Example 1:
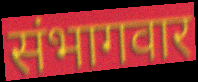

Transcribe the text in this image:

संभागवार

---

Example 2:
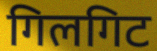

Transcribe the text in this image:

गिलगिट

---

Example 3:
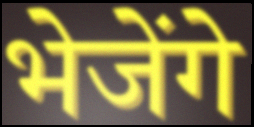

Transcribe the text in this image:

भेजेंगे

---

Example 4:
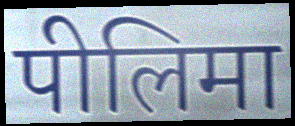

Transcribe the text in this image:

पीलिमा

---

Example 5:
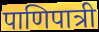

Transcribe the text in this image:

पाणिपात्री